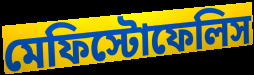
মেফিস্টোফেলিস